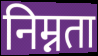
निम्नता